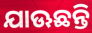
ଯାଊଛନ୍ତି